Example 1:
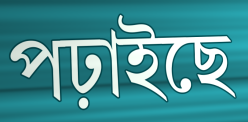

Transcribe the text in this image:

পঢ়াইছে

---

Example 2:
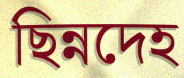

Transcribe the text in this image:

ছিন্নদেহ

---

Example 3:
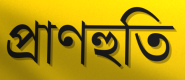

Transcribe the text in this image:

প্ৰাণহুতি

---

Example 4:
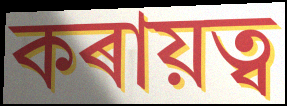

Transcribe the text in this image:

কৰায়ত্ব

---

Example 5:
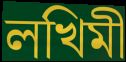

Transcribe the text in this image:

লখিমী